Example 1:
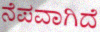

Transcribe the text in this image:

ನೆಪವಾಗಿದೆ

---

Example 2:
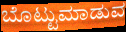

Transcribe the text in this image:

ಬೊಟ್ಟುಮಾಡುವ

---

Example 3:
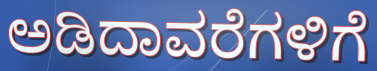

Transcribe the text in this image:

ಅಡಿದಾವರೆಗಳಿಗೆ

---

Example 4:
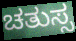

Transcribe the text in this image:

ಚತುಸ್ಸ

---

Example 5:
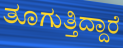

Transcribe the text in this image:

ತೂಗುತ್ತಿದ್ದಾರೆ